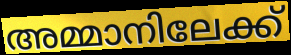
അമ്മാനിലേക്ക്